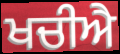
ਖਚੀਐ